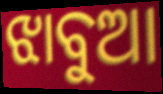
ଝାବୁଆ